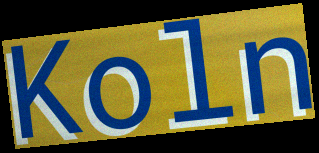
Koln